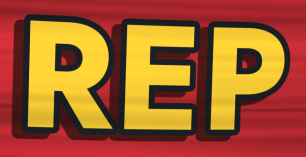
REP